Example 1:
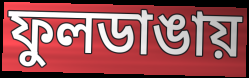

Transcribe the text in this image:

ফুলডাঙায়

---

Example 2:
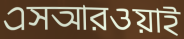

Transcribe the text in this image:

এসআরওয়াই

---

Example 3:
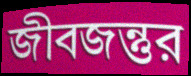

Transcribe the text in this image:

জীবজন্তুর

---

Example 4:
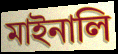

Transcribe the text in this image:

মাইনালি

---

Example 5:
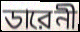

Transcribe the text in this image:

ডারেনী